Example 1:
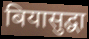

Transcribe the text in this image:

बियासुद्धा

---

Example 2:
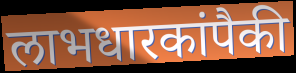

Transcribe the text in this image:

लाभधारकांपैकी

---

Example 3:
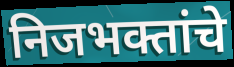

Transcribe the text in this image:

निजभक्तांचे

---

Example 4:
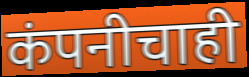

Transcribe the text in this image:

कंपनीचाही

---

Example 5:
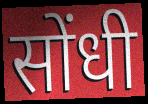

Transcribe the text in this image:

सोंधी